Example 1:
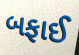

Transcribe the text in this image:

બફાઈ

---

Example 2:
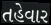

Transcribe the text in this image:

તહેવાર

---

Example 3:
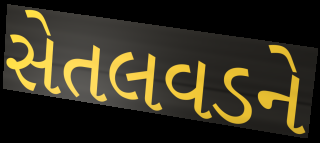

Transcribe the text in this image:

સેતલવડને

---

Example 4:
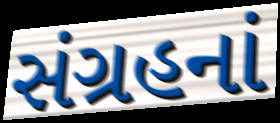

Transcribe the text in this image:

સંગ્રહનાં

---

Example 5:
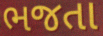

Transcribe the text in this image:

ભજતા